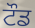
ਟੌਡ